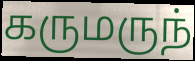
கருமருந்